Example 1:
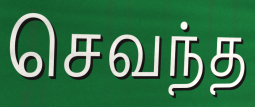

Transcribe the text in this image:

செவந்த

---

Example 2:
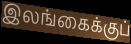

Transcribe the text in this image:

இலங்கைக்குப்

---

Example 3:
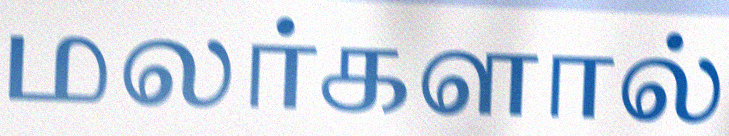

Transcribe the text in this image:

மலர்களால்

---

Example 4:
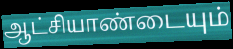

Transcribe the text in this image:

ஆட்சியாண்டையும்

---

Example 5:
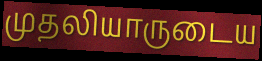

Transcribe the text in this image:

முதலியாருடைய